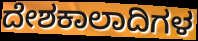
ದೇಶಕಾಲಾದಿಗಳ